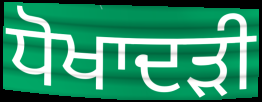
ਧੋਖਾਦੜੀ